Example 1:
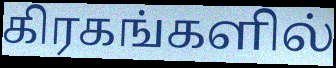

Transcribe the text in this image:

கிரகங்களில்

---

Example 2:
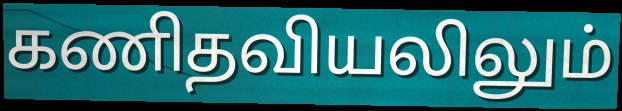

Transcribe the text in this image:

கணிதவியலிலும்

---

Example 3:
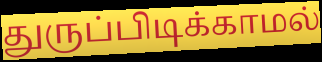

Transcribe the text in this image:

துருப்பிடிக்காமல்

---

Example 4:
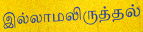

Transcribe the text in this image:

இல்லாமலிருத்தல்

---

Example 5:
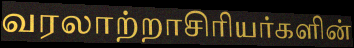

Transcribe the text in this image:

வரலாற்றாசிரியர்களின்